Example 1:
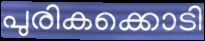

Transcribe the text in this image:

പുരികക്കൊടി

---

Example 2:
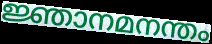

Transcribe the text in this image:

ജ്ഞാനമനന്തം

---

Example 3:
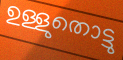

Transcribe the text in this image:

ഉള്ളുതൊട്ടു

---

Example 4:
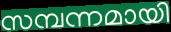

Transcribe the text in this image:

സമ്പന്നമായി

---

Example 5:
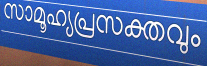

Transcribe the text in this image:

സാമൂഹ്യപ്രസക്തവും